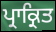
ਪ੍ਰਾਕ੍ਰਿਤ